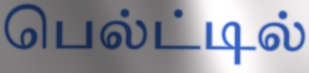
பெல்ட்டில்